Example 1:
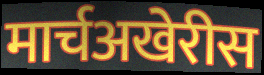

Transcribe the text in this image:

मार्चअखेरीस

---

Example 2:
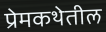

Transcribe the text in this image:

प्रेमकथेतील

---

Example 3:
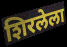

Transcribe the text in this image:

शिरलेला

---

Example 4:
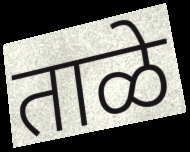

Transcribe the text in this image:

ताळे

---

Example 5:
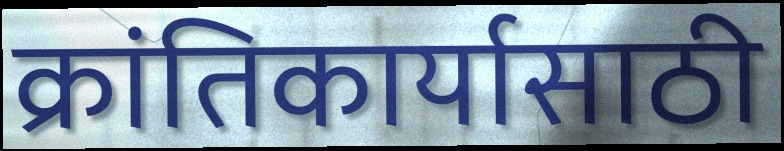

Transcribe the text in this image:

क्रांतिकार्यासाठी